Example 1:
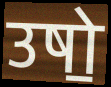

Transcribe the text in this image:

उषो॒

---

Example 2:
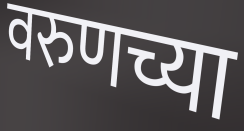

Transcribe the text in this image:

वरुणच्या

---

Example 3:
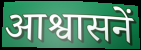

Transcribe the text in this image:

आश्वासनें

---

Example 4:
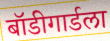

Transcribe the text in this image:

बॉडीगार्डला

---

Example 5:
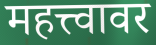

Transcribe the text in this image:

महत्त्वावर